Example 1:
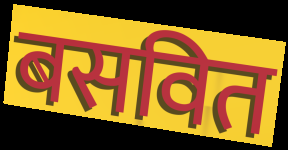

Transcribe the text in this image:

बसवित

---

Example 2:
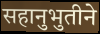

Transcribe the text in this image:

सहानुभुतीने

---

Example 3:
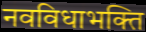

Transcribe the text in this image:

नवविधाभक्ति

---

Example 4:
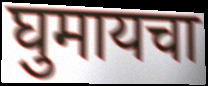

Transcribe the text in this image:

घुमायचा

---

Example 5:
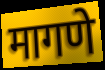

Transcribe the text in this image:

मागणे